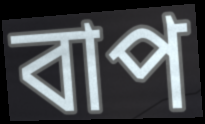
বাপ